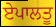
ਏਪਾਲਤੂ